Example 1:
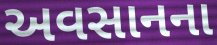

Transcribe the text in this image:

અવસાનના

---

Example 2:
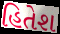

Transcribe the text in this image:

હિતેશ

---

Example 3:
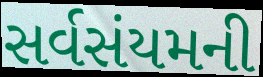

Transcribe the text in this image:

સર્વસંયમની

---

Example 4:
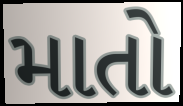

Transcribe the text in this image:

માતો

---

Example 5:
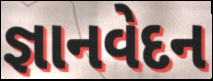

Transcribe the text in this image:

જ્ઞાનવેદન